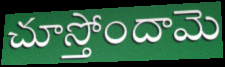
చూస్తోందామె